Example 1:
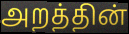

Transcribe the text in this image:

அறத்தின்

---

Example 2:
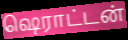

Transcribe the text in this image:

ஷெராட்டன்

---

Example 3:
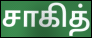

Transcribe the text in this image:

சாகித்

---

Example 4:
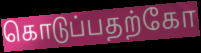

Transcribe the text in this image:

கொடுப்பதற்கோ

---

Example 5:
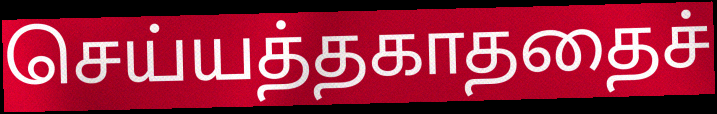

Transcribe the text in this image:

செய்யத்தகாததைச்